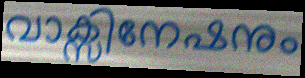
വാക്സിനേഷനും